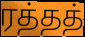
ரத்தத்